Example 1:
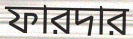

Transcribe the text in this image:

ফারদার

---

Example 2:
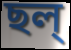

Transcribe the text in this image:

ছল্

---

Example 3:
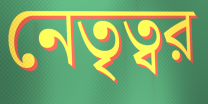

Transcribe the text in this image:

নেতৃত্বর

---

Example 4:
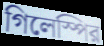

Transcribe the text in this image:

গিলেস্পির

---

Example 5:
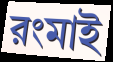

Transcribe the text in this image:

রংমাই